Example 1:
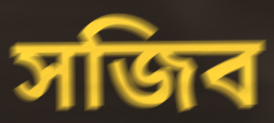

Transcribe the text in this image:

সজিব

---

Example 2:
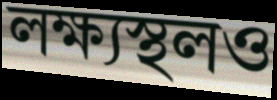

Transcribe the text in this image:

লক্ষ্যস্থলও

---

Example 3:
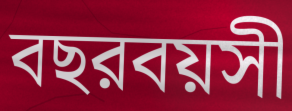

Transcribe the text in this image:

বছরবয়সী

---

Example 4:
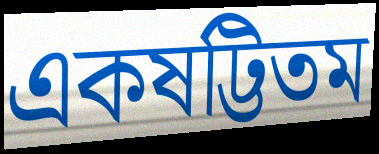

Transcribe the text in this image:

একষট্টিতম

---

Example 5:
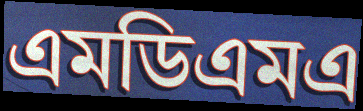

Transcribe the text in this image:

এমডিএমএ